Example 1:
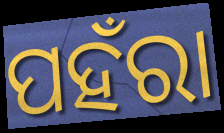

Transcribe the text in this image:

ପହଁରା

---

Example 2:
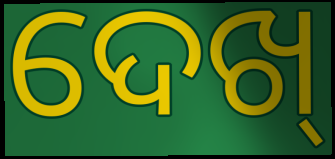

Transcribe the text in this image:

ଦେଖ୍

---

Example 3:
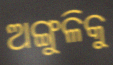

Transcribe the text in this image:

ଅଙ୍ଗୁଳିକୁ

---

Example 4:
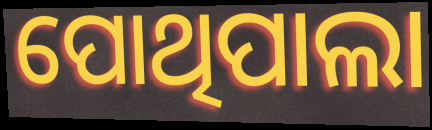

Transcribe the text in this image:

ପୋଥିପାଲା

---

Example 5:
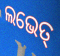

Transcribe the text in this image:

ଲଭେତ୍